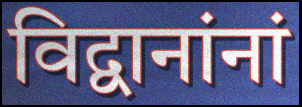
विद्वानांनां